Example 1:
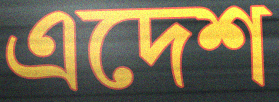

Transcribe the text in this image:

এদেশ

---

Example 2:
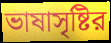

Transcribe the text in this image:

ভাষাসৃষ্টির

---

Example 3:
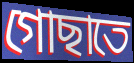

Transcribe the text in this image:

গোছাতে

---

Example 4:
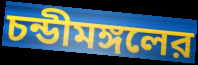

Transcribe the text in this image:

চন্ডীমঙ্গলের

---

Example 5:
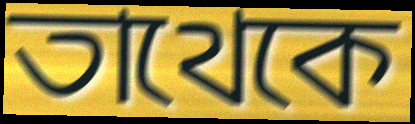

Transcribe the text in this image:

তাথেকে